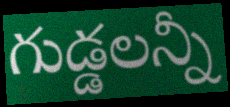
గుడ్డలన్నీ